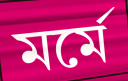
মৰ্মে